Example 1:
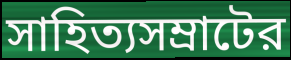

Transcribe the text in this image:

সাহিত্যসম্রাটের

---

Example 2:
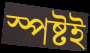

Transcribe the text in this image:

স্পষ্টই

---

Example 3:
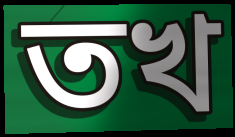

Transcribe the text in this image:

তখ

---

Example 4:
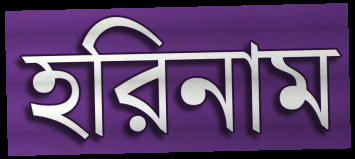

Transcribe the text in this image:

হরিনাম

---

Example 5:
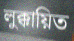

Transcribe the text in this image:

লুক্কায়িত